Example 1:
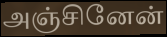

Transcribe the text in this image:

அஞ்சினேன்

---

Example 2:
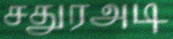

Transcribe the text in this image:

சதுரஅடி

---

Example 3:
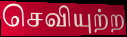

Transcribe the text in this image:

செவியுற்ற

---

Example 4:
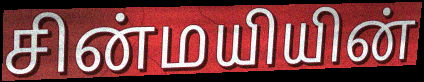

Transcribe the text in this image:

சின்மயியின்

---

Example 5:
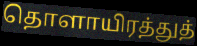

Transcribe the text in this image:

தொளாயிரத்துத்